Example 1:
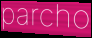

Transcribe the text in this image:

parcho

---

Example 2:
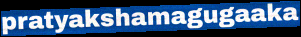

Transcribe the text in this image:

pratyakshamagugaaka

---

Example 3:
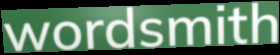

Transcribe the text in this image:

wordsmith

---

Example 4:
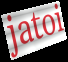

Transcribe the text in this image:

jatoi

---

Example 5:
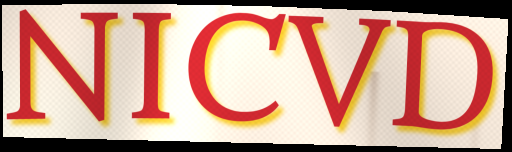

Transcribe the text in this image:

NICVD